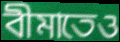
বীমাতেও